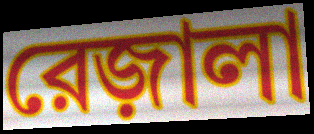
রেজ়ালা